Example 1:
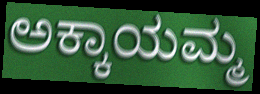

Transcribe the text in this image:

ಅಕ್ಕಾಯಮ್ಮ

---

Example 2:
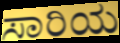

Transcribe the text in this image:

ಸಾರಿಯ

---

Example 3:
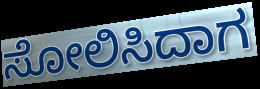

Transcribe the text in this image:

ಸೋಲಿಸಿದಾಗ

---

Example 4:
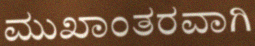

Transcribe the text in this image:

ಮುಖಾಂತರವಾಗಿ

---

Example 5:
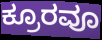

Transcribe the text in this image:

ಕ್ರೂರವೂ